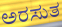
ಅರಸುತ